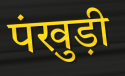
पंखुड़ी